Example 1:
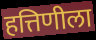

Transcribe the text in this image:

हत्तिणीला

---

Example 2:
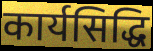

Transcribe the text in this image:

कार्यसिद्धि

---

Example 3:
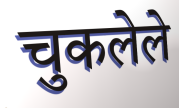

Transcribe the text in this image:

चुकलेले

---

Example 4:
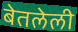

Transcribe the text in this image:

बेतलेली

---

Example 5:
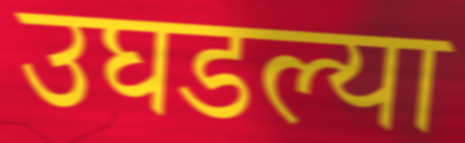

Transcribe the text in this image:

उघडल्या